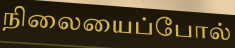
நிலையைப்போல்